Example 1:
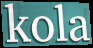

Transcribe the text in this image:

kola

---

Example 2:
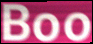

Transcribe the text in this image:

Boo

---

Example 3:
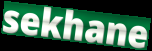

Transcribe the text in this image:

sekhane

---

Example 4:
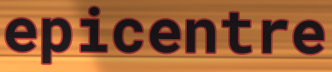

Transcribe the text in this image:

epicentre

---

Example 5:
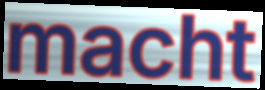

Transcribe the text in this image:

macht